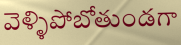
వెళ్ళిపోబోతుండగా